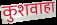
कुशवाहा